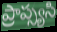
ప్రాప్స్యసి